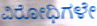
ವಿರೋಧಿಗಳೇ